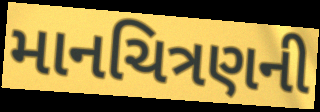
માનચિત્રણની